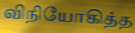
விநியோகித்த